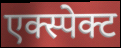
एक्स्पेक्ट